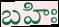
బహిః